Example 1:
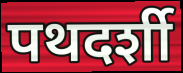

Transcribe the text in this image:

पथदर्शी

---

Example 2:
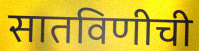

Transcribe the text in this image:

सातविणीची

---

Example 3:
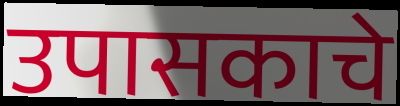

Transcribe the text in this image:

उपासकाचे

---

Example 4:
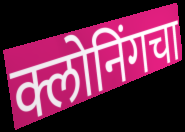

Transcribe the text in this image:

क्लोनिंगचा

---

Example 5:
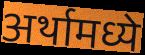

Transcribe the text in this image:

अर्थामध्ये